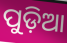
ପୁଡ଼ିଆ